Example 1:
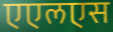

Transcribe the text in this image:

एएलएस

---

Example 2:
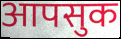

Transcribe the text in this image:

आपसुक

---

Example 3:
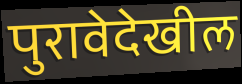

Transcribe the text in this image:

पुरावेदेखील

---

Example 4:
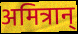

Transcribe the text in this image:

अमित्रान्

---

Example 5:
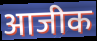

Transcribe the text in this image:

आजीक